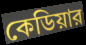
কেডিয়ার